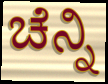
ಚೆನ್ನಿ